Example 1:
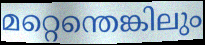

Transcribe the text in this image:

മറ്റെന്തെങ്കിലും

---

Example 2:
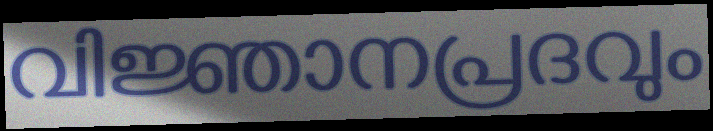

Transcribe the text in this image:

വിജ്ഞാനപ്രദവും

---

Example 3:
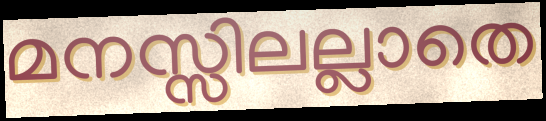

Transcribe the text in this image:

മനസ്സിലല്ലാതെ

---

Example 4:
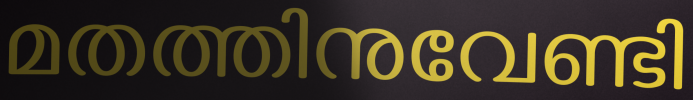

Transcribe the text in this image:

മതത്തിനുവേണ്ടി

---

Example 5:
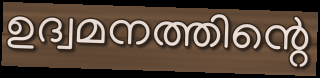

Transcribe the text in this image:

ഉദ്വമനത്തിന്റെ